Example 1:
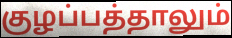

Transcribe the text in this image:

குழப்பத்தாலும்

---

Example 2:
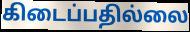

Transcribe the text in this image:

கிடைப்பதில்லை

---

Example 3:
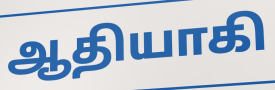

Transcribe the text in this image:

ஆதியாகி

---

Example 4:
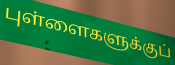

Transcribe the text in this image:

புள்ளைகளுக்குப்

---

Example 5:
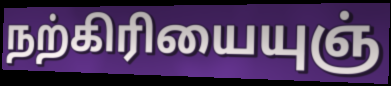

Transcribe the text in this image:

நற்கிரியையுஞ்